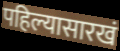
पहिल्यासारखं